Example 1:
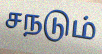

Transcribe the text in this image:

சநடும்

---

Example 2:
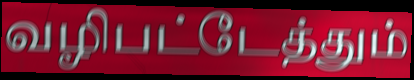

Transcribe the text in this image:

வழிபட்டேத்தும்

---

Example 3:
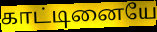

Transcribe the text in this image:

காட்டினையே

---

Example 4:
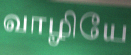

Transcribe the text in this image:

வாழியே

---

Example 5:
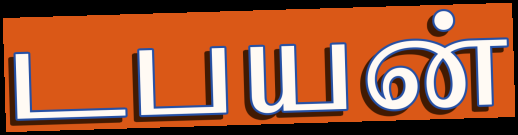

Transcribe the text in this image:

டபயன்